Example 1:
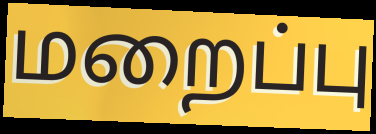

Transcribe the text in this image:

மறைப்பு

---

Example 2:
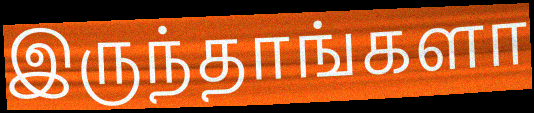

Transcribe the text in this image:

இருந்தாங்களா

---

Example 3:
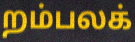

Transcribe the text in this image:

றம்பலக்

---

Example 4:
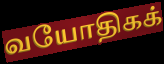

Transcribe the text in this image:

வயோதிகக்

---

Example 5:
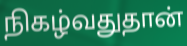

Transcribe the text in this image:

நிகழ்வதுதான்